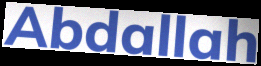
Abdallah